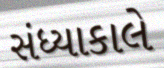
સંધ્યાકાલે